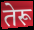
तेरू